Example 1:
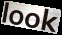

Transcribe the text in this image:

look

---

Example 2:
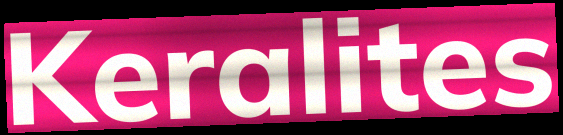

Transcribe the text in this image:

Keralites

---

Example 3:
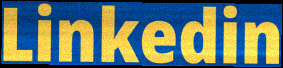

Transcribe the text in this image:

Linkedin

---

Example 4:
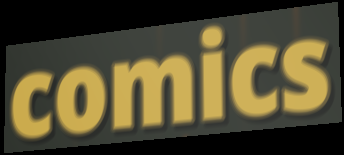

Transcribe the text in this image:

comics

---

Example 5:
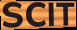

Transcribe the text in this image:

SCIT